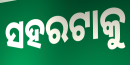
ସହରଟାକୁ